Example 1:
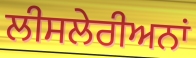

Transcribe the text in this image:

ਲੀਸਲੇਰੀਅਨਾਂ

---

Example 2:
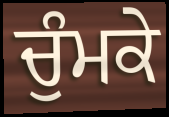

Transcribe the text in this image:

ਚੁੰਮਕੇ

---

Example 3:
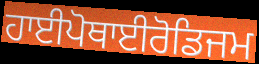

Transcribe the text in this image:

ਹਾਈਪੋਥਾਈਰੋਡਿਜਮ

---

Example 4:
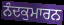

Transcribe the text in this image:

ਨੰਦਕੁਮਾਰਨ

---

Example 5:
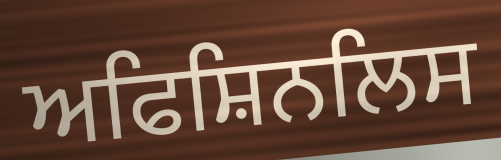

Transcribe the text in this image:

ਅਫਿਸ਼ਿਨਲਿਸ